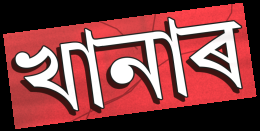
খানাৰ